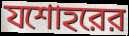
যশোহরের